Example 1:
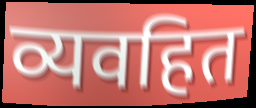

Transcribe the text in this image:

व्यवहित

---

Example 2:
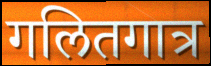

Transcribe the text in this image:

गलितगात्र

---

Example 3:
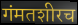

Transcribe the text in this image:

गंमतशीरच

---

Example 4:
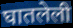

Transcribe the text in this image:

घातलेली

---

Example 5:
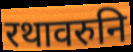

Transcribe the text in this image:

रथावरुनि